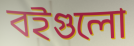
বইগুলো